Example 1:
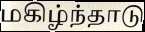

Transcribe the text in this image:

மகிழ்ந்தாடு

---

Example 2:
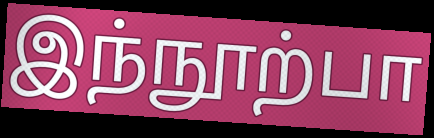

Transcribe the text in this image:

இந்நூற்பா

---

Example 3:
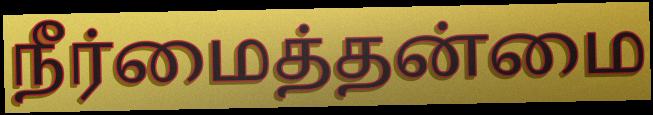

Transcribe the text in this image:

நீர்மைத்தன்மை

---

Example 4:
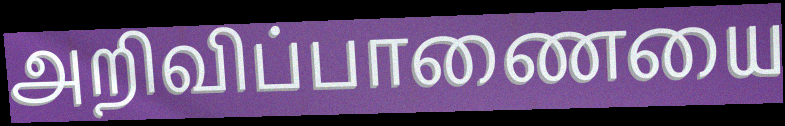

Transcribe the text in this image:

அறிவிப்பாணையை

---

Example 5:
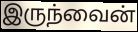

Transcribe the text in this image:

இருந்வைன்